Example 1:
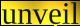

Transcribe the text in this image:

unveil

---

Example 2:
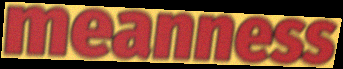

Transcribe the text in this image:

meanness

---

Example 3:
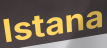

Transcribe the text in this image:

Istana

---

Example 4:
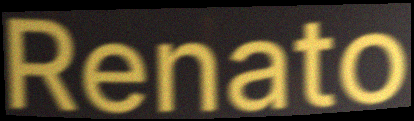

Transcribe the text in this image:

Renato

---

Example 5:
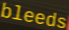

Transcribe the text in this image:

bleeds